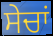
ਸੇਚਾਂ